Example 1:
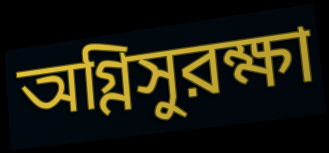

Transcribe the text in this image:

অগ্নিসুরক্ষা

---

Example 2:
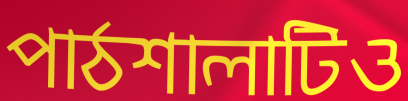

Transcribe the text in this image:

পাঠশালাটিও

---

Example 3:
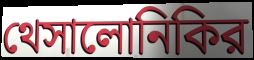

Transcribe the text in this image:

থেসালোনিকির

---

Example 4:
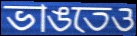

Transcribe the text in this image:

ভাঙতেও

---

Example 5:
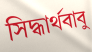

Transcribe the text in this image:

সিদ্ধার্থবাবু